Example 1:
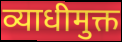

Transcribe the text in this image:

व्याधीमुक्त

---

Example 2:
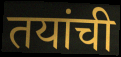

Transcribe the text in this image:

तयांची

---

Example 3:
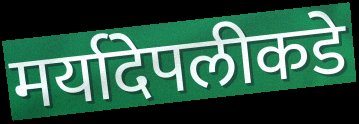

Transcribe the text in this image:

मर्यादेपलीकडे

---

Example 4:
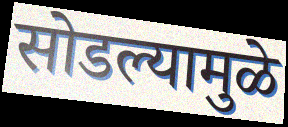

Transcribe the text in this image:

सोडल्यामुळे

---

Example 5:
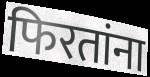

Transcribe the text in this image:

फिरतांना